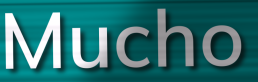
Mucho